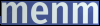
menm